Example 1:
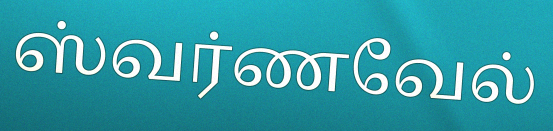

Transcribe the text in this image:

ஸ்வர்ணவேல்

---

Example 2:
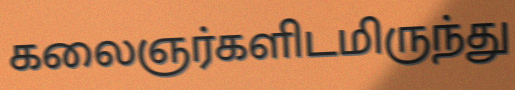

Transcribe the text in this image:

கலைஞர்களிடமிருந்து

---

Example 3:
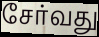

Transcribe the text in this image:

சேர்வது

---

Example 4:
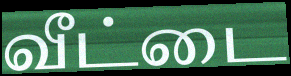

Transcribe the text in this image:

வீட்டை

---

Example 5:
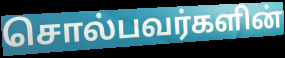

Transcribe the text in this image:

சொல்பவர்களின்